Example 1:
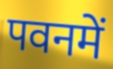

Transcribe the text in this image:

पवनमें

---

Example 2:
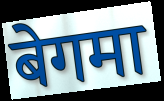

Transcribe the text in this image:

बेगमा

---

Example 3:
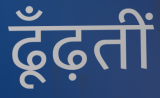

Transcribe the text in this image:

ढूँढ़तीं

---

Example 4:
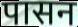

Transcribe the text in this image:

पासन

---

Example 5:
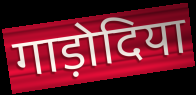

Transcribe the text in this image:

गाड़ोदिया